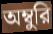
অম্বুরি